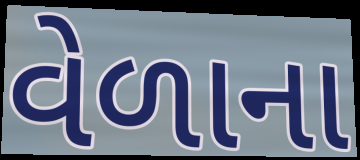
વેળાના